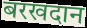
बरखदान